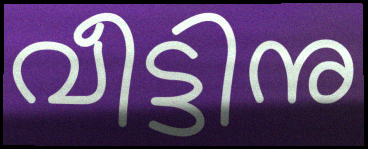
വീട്ടിനു